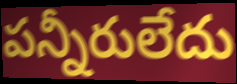
పన్నీరులేదు